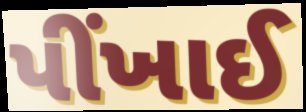
પીંખાઈ